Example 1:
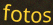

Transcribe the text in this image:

fotos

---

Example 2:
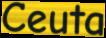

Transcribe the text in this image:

Ceuta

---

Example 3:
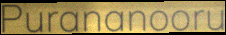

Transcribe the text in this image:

Purananooru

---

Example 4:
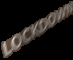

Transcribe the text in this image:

LOCKDOWN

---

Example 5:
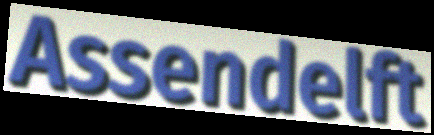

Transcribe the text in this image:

Assendelft